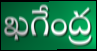
ఖగేంద్ర